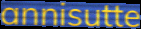
annisutte